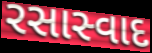
રસાસ્વાદ